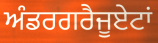
ਅੰਡਰਗਰੈਜੂਏਟਾਂ